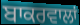
ਬਾਕਰਵਾਲਾਂ